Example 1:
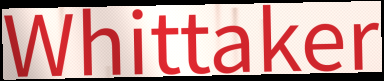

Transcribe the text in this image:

Whittaker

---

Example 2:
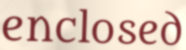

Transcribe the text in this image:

enclosed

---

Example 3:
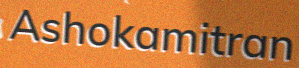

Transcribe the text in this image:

Ashokamitran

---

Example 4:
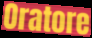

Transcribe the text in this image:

Oratore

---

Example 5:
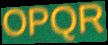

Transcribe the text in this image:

OPQR